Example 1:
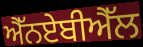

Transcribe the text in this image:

ਐੱਨਏਬੀਐੱਲ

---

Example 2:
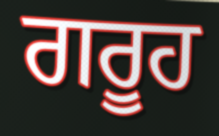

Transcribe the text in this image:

ਗਰੂਹ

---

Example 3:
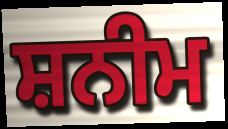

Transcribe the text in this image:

ਸ਼ਨੀਮ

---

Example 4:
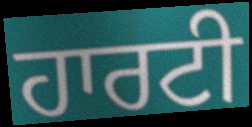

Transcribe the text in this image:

ਹਾਰਟੀ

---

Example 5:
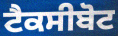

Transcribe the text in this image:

ਟੈਕਸੀਬੋਟ